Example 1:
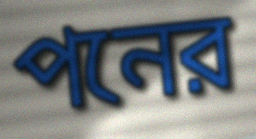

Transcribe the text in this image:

পনের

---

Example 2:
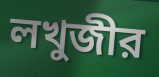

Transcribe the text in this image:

লখুজীর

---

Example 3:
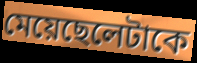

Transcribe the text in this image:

মেয়েছেলেটাকে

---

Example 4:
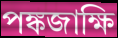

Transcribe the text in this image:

পঙ্কজাক্ষি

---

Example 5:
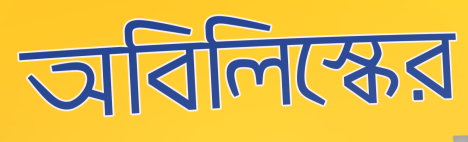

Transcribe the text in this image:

অবিলিস্কের